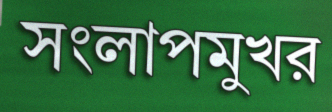
সংলাপমুখর